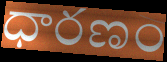
ధారణం